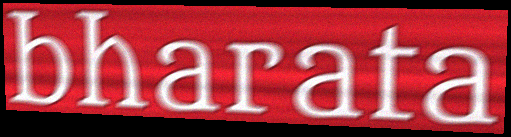
bharata